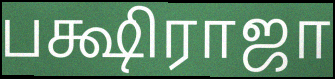
பக்ஷிராஜா